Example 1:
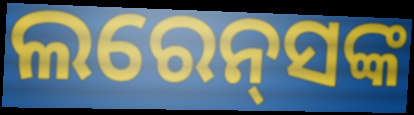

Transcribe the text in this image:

ଲରେନ୍‌ସଙ୍କ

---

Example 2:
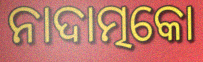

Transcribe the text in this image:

ନାଦାତ୍ମକୋ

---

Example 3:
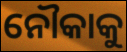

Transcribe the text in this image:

ନୌକାକୁ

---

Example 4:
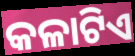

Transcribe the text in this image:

କଳାଟିଏ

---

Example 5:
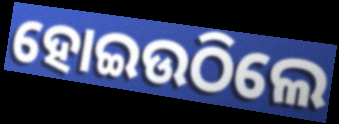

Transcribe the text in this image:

ହୋଇଉଠିଲେ